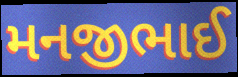
મનજીભાઈ